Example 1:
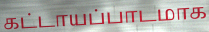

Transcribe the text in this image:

கட்டாயப்பாடமாக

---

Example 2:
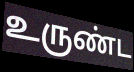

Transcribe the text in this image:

உருண்ட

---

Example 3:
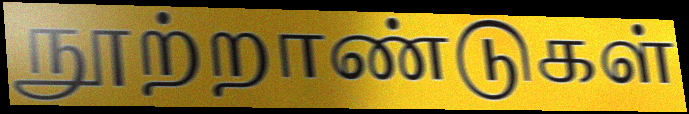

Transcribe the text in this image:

நூற்றாண்டுகள்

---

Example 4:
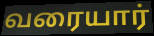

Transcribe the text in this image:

வரையார்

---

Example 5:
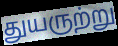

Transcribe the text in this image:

துயருற்று